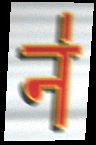
न॑